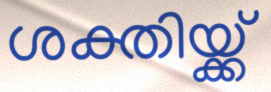
ശക്തിയ്ക്ക്